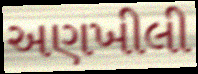
અણખીલી